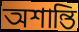
অশান্তি